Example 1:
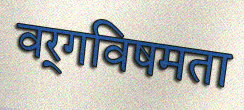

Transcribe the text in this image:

वर्गविषमता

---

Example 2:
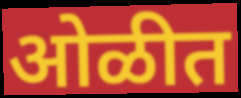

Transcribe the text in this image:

ओळीत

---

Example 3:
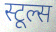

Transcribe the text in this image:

स्टूल्स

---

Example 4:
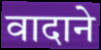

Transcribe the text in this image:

वादाने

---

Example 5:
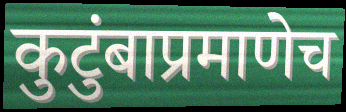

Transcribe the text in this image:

कुटुंबाप्रमाणेच